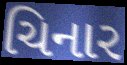
ચિનાર